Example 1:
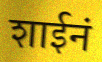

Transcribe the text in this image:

शाईनं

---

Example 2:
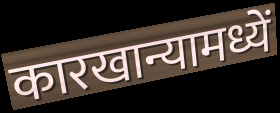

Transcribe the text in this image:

कारखान्यामध्यें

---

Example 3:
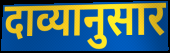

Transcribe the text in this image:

दाव्यानुसार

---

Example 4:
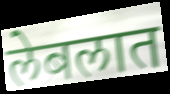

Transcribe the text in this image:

लेबलात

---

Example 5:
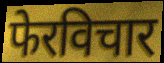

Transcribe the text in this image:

फेरविचार